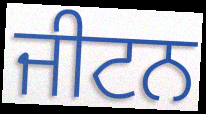
ਜੀਟਨ